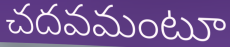
చదవమంటూ